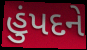
હુંપદને